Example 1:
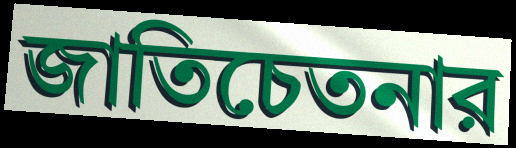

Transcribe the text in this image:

জাতিচেতনার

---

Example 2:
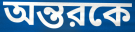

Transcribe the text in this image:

অন্তরকে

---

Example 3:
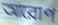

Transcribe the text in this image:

আরোপ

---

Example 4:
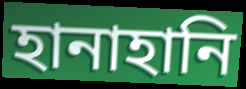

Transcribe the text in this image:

হানাহানি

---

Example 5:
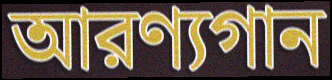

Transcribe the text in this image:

আরণ্যগান